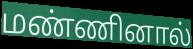
மண்ணினால்